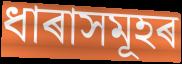
ধাৰাসমূহৰ